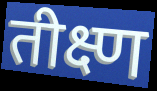
तीक्ष्ण